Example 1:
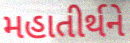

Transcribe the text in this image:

મહાતીર્થને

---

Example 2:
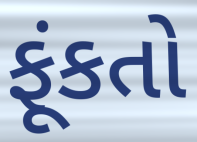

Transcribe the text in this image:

ફૂંકતો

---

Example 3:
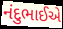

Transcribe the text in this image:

નંદુભાઈએ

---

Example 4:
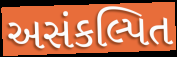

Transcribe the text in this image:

અસંકલ્પિત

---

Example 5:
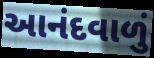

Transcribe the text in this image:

આનંદવાળું